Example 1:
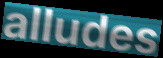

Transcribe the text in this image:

alludes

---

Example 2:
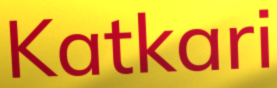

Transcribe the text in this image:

Katkari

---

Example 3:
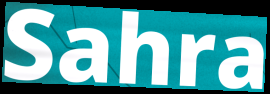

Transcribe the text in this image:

Sahra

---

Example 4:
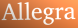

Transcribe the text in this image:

Allegra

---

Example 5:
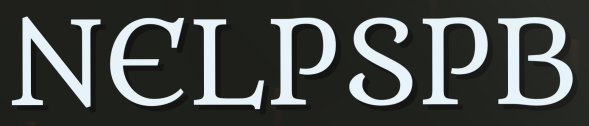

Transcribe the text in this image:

NELPSPB